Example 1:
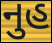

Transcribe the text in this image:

નુહ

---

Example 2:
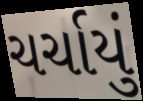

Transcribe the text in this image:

ચર્ચાયું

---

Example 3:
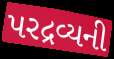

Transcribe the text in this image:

પરદ્રવ્યની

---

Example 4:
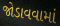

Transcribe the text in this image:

જોડાવવામાં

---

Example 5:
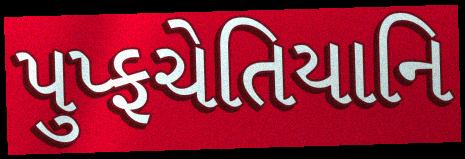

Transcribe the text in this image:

પુપ્ફચેતિયાનિ